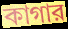
কাগার